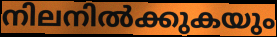
നിലനിൽക്കുകയും